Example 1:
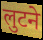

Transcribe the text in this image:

लुटने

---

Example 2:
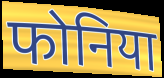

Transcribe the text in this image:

फोनिया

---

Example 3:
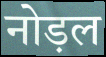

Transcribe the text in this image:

नोड़ल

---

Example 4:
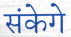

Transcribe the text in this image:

संकेगे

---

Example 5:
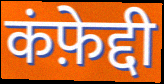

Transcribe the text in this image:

कंफ़ेद्दी